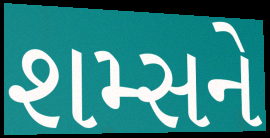
શમ્સને